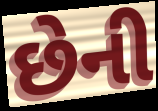
છેની